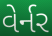
વેર્નર